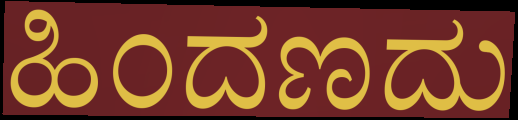
ಹಿಂದಣದು